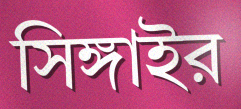
সিঙ্গাইর